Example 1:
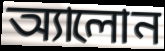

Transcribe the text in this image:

অ্যালোন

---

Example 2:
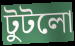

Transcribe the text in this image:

টুটলো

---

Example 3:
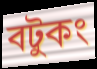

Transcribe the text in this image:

বটুকং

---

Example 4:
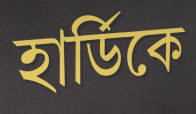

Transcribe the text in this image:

হার্ডিকে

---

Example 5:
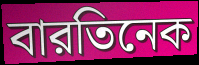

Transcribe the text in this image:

বারতিনেক